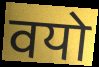
वयो